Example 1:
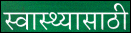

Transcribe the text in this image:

स्वास्थ्यासाठी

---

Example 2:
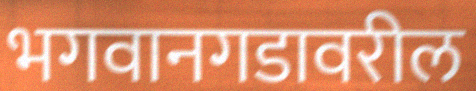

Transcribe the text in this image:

भगवानगडावरील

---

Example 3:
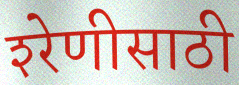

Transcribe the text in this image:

श्रेणीसाठी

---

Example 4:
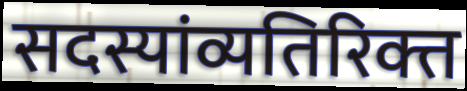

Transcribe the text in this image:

सदस्यांव्यतिरिक्त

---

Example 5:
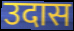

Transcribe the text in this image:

उदास